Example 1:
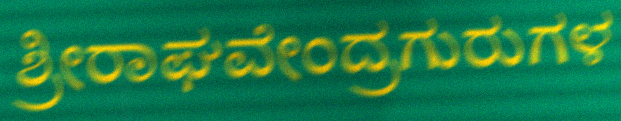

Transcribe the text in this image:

ಶ್ರೀರಾಘವೇಂದ್ರಗುರುಗಳ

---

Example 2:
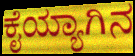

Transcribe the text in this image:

ಕೈಯ್ಯಾಗಿನ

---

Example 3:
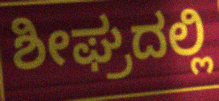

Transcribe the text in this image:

ಶೀಘ್ರದಲ್ಲಿ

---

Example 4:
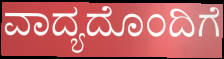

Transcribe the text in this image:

ವಾದ್ಯದೊಂದಿಗೆ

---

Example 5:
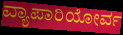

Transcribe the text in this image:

ವ್ಯಾಪಾರಿಯೋರ್ವ